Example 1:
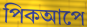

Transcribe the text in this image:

পিকআপে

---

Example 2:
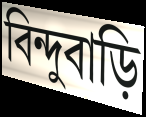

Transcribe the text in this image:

বিন্দুবাড়ি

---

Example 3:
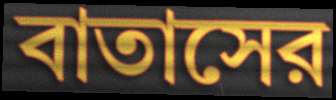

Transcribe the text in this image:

বাতাসের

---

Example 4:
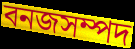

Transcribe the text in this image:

বনজসম্পদ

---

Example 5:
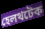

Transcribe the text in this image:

হেলথটেক